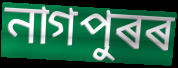
নাগপুৰৰ